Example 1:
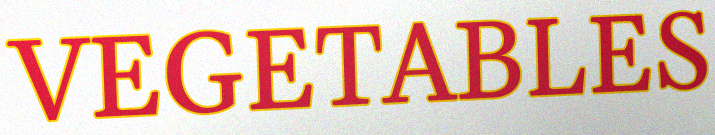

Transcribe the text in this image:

VEGETABLES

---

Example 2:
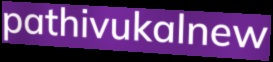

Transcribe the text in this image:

pathivukalnew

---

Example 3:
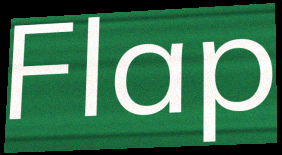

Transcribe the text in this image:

Flap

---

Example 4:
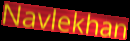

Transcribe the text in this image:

Navlekhan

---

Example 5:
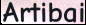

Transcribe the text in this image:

Artibai